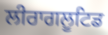
ਲੀਰਾਗਲੂਟਿਡ